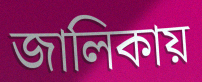
জালিকায়